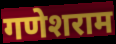
गणेशराम